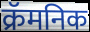
क्रॅमनिक